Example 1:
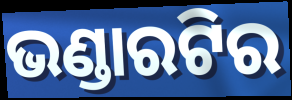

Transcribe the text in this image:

ଭଣ୍ଡାରଟିର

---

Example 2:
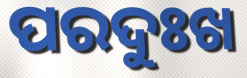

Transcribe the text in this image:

ପରଦୁଃଖ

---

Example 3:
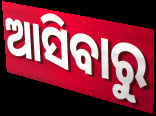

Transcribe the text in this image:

ଆସିବାରୁ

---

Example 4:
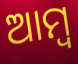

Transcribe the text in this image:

ଆମ୍ୱ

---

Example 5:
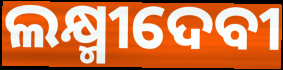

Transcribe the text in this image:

ଲକ୍ଷ୍ମୀଦେବୀ